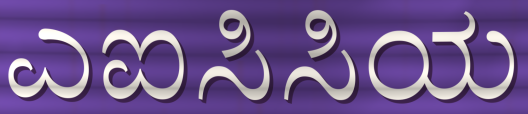
ಎಐಸಿಸಿಯ